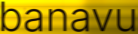
banavu